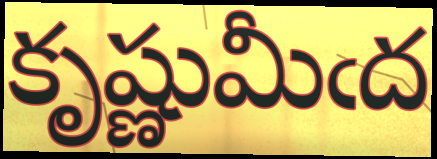
కృష్ణుమీఁద